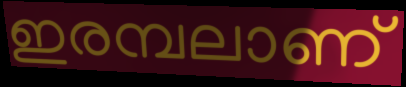
ഇരമ്പലാണ്